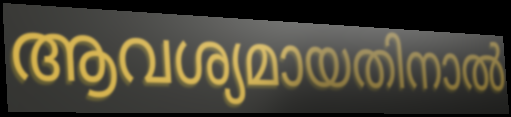
ആവശ്യമായതിനാൽ